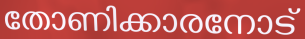
തോണിക്കാരനോട്